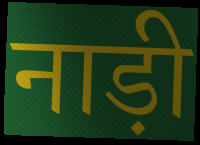
नाड़ी